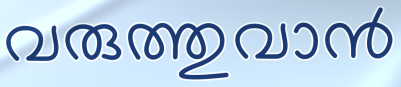
വരുത്തുവാൻ